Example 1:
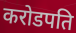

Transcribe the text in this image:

करोडपति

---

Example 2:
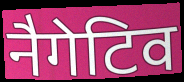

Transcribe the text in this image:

नैगेटिव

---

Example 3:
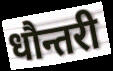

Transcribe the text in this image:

धौन्तरी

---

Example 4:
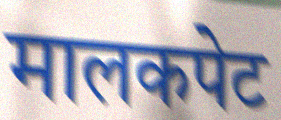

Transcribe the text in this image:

मालकपेट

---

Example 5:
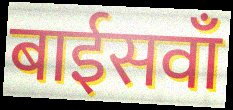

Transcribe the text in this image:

बाईसवाँ